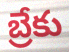
బ్రేకు